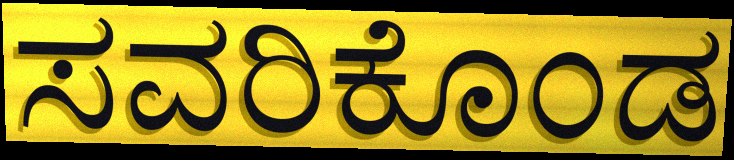
ಸವರಿಕೊಂಡ